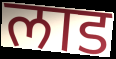
लाड